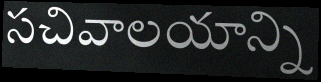
సచివాలయాన్ని